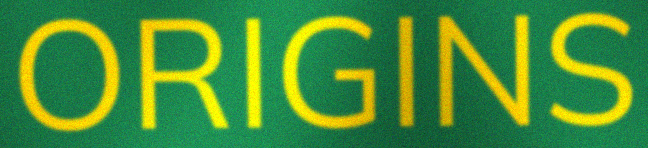
ORIGINS